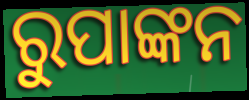
ରୁପାଙ୍କନ